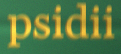
psidii